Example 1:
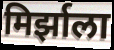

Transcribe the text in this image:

मिर्झाला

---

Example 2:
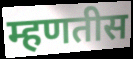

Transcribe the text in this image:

म्हणतीस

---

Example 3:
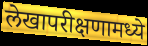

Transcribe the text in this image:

लेखापरीक्षणामध्ये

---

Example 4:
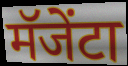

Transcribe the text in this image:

मॅजेंटा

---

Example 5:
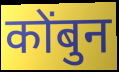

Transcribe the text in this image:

कोंबुन